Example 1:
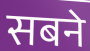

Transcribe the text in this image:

सबने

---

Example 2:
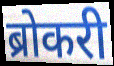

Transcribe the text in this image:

ब्रोकरी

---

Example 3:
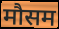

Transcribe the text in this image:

मौसम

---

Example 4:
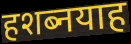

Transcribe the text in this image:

हशब्नयाह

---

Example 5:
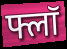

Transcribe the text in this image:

फ्लॉ